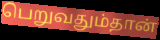
பெறுவதும்தான்